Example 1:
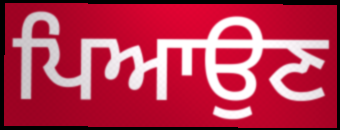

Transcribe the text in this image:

ਪਿਆਉਣ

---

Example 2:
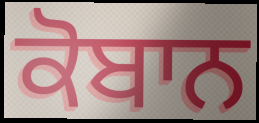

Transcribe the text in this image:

ਕੋਬਾਨ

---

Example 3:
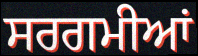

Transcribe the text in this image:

ਸਰਗਮੀਆਂ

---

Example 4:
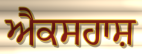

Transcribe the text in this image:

ਐਕਸਹਾਸ਼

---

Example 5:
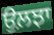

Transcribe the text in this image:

ਉਲ਼ਝਾ